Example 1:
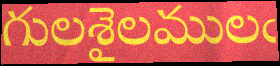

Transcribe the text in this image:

గులశైలములఁ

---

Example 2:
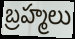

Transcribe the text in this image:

బ్రహ్మలు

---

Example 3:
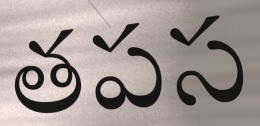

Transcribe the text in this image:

తపస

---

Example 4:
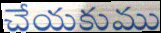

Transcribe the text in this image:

చేయకుము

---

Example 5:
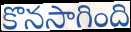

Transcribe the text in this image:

కొనసాగింది